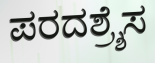
ಪರದಶ್ರ್ಶೆಸ